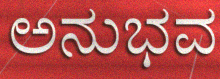
ಅನುಭವ